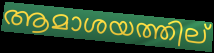
ആമാശയത്തില്